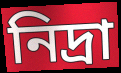
নিদ্রা